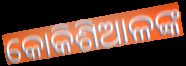
କୋକିଶିଆଳଙ୍କ